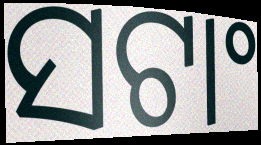
ସଟାଂ